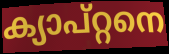
ക്യാപ്റ്റനെ